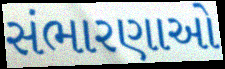
સંભારણાઓ